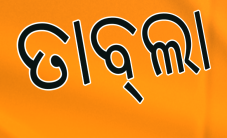
ତାବ୍‌ଲା